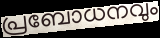
പ്രബോധനവും